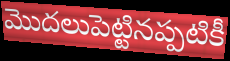
మొదలుపెట్టినప్పటికీ